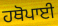
ਹਥੋਪਾਈ